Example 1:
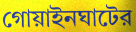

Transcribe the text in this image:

গোয়াইনঘাটের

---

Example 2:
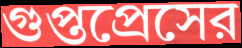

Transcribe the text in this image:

গুপ্তপ্রেসের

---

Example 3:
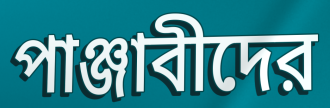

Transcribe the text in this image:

পাঞ্জাবীদের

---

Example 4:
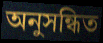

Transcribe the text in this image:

অনুসন্ধিত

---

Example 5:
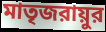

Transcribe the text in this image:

মাতৃজরায়ুর